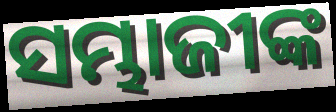
ସମ୍ଭାଜୀଙ୍କ